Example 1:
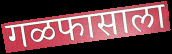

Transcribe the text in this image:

गळफासाला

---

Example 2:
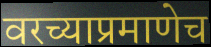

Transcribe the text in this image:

वरच्याप्रमाणेच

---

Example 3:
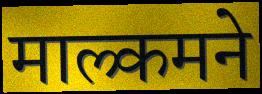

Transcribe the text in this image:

माल्कमने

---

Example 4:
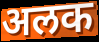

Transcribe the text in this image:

अलक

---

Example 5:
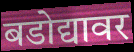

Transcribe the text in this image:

बडोद्यावर